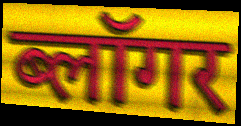
ब्लॉगर